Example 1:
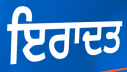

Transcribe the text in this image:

ਇਰਾਦਤ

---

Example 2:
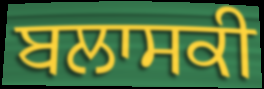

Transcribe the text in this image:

ਬਲਾਸਕੀ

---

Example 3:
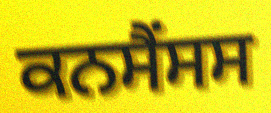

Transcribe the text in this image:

ਕਨਸੈਂਸਸ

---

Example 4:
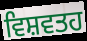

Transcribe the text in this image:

ਵਿਸ਼ਵਤਹ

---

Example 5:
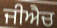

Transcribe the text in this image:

ਜੀਐਚ